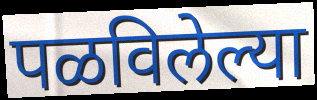
पळविलेल्या